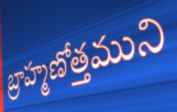
బ్రాహ్మణోత్తముని